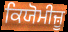
ਕਿਯੋਮੀਜ਼ੂ